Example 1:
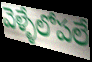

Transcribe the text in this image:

వెళ్ళేలోపలే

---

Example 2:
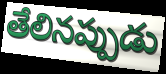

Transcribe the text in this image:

తేలినప్పుడు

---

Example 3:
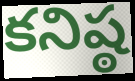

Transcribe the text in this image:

కనిష్ఠ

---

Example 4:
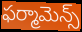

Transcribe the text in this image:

ఫర్మామెన్స్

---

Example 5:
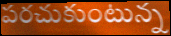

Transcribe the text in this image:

పరచుకుంటున్న